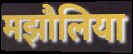
मझौलिया